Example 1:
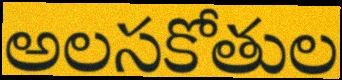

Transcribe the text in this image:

అలసకోతుల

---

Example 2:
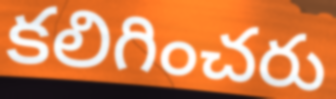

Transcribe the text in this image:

కలిగించరు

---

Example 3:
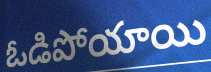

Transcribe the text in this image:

ఓడిపోయాయి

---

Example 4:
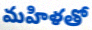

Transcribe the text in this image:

మహిళతో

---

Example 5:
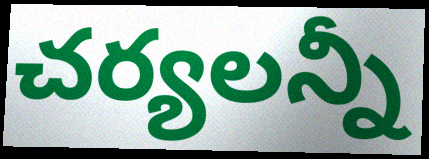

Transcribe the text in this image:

చర్యలన్నీ